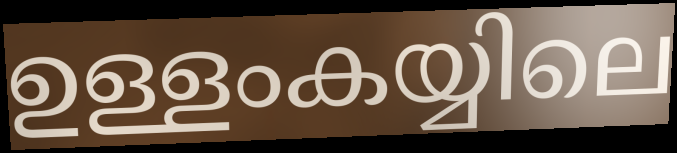
ഉള്ളംകയ്യിലെ